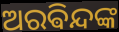
ଅରଵିନ୍ଦଙ୍କ